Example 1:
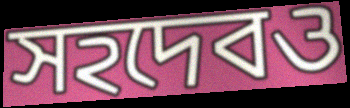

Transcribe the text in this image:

সহদেবও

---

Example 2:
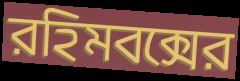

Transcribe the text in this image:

রহিমবক্সের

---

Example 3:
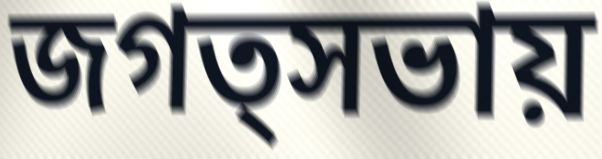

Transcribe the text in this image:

জগত্সভায়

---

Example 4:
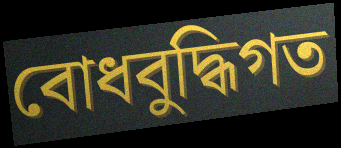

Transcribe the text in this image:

বোধবুদ্ধিগত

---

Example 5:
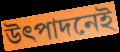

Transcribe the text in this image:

উৎপাদনেই